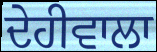
ਦੇਹੀਵਾਲਾ